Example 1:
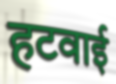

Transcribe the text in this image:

हटवाई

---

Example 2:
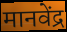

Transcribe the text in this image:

मानवेंद्र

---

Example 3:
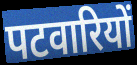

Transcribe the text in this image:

पटवारियों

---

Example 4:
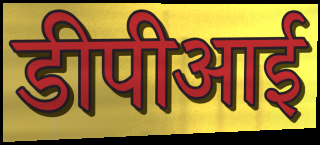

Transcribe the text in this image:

डीपीआई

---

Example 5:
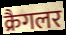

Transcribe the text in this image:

क्रैगलर